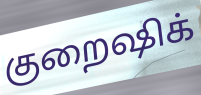
குறைஷிக்